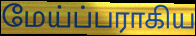
மேய்ப்பராகிய